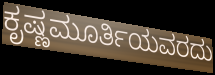
ಕೃಷ್ಣಮೂರ್ತಿಯವರದು